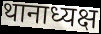
थानाध्यक्ष